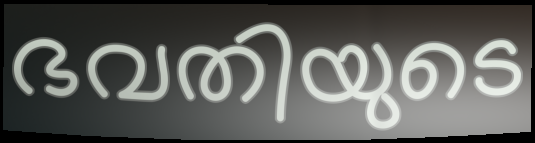
ഭവതിയുടെ